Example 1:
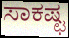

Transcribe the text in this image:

ಸಾಕಷ್ಟ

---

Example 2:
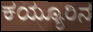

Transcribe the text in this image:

ಕಯ್ಯೂರಿನ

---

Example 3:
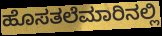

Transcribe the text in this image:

ಹೊಸತಲೆಮಾರಿನಲ್ಲಿ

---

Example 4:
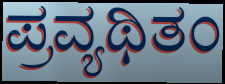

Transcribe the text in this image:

ಪ್ರವ್ಯಥಿತಂ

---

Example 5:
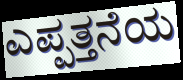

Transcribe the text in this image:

ಎಪ್ಪತ್ತನೆಯ